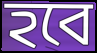
হবে